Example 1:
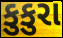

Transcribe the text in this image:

કુકુરા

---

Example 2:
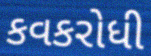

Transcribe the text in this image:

કવકરોધી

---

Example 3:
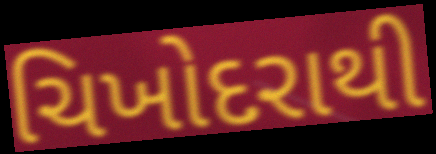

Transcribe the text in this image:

ચિખોદરાથી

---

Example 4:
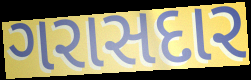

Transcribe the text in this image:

ગરાસદાર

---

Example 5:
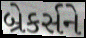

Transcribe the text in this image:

બ્રેકર્સને